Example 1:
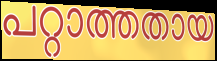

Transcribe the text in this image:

പറ്റാത്തതായ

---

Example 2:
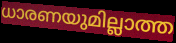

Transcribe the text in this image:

ധാരണയുമില്ലാത്ത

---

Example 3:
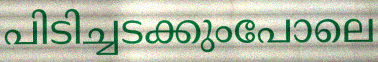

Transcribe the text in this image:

പിടിച്ചടക്കുംപോലെ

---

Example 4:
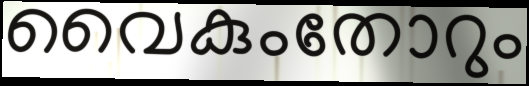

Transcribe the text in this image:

വൈകുംതോറും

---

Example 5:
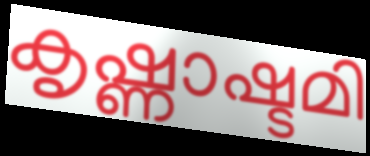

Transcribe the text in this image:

കൃഷ്ണാഷ്ടമി